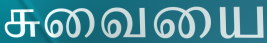
சுவையை